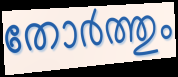
തോർത്തും